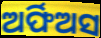
ଅର୍ଫିଅସ